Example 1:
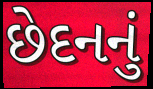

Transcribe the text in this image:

છેદનનું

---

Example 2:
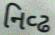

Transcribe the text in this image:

નિવ્ઢ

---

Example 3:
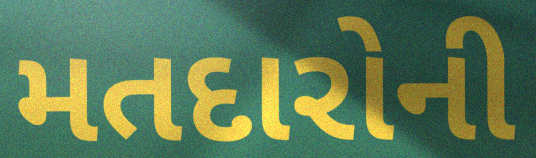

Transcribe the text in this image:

મતદારોની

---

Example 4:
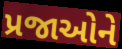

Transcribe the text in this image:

પ્રજાઓને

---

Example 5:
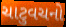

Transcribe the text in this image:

ચાટુવચનો